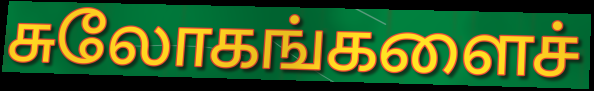
சுலோகங்களைச்